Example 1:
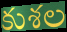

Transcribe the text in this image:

కుశల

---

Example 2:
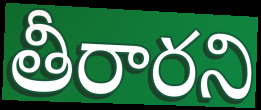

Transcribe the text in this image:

తీరారని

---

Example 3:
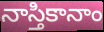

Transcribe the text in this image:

నాస్తికానాం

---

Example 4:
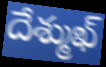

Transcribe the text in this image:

దేశ్ముఖ్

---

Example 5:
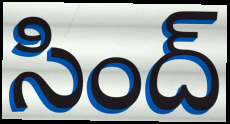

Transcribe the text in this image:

సింద్